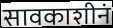
सावकाशीनं